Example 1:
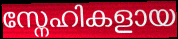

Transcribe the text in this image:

സ്നേഹികളായ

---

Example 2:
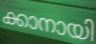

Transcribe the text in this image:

ക്കാനായി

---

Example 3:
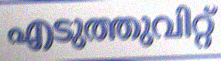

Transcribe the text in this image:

എടുത്തുവിറ്റ്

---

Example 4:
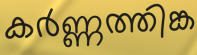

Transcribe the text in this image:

കർണ്ണത്തിങ്ക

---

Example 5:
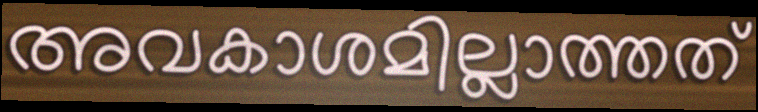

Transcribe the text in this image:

അവകാശമില്ലാത്തത്